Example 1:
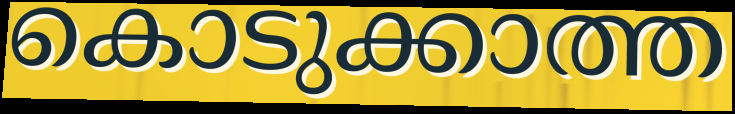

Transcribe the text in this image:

കൊടുക്കാത്ത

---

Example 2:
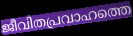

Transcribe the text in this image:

ജീവിതപ്രവാഹത്തെ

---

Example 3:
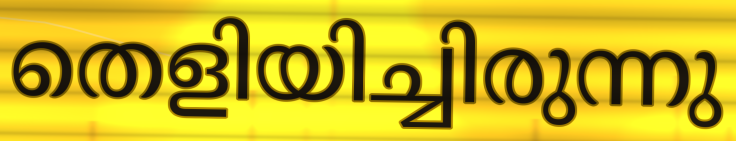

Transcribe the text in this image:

തെളിയിച്ചിരുന്നു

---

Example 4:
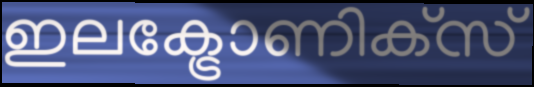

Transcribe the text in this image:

ഇലക്ട്രോണിക്‌സ്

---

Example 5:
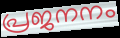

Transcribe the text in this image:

പ്രജനനം